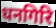
धनगिरि